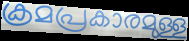
ക്രമപ്രകാരമുള്ള